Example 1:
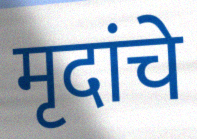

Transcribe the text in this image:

मृदांचे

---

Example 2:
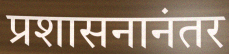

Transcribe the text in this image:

प्रशासनानंतर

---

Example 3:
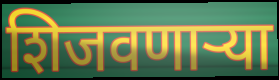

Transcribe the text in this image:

शिजवणाऱ्या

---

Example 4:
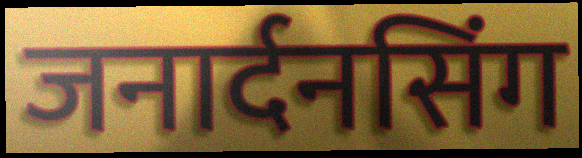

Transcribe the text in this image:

जनार्दनसिंग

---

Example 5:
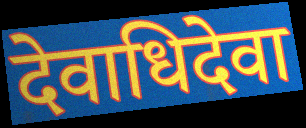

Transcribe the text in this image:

देवाधिदेवा